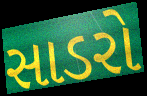
સાડરો